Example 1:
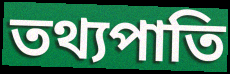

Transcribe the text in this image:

তথ্যপাতি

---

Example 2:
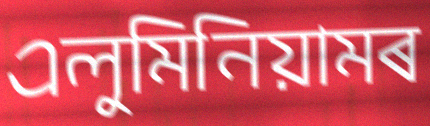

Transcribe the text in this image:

এলুমিনিয়ামৰ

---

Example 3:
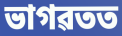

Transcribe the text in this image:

ভাগৱতত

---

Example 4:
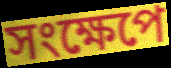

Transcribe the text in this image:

সংক্ষেপে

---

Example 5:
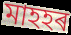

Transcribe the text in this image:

মাহহৰ